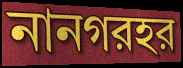
নানগরহর